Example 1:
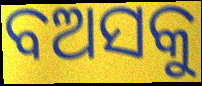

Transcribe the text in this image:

ବଅସକୁ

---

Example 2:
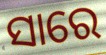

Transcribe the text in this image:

ସାରେ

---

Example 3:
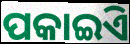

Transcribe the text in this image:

ପକାଇିଏ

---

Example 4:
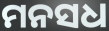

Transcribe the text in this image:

ମନସଧ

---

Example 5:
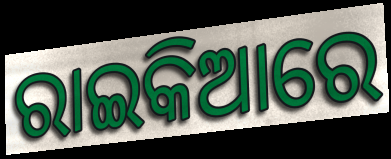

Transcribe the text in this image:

ରାଇକିଆରେ